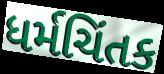
ધર્મચિંતક